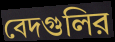
বেদগুলির